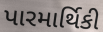
પારમાર્થિકી